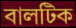
বালটিক